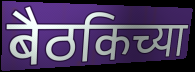
बैठकिच्या